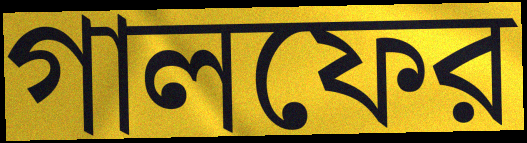
গালফের